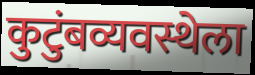
कुटुंबव्यवस्थेला